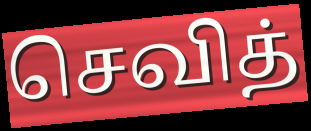
செவித்